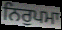
ਨਿਰੁਪਮਾ